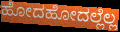
ಹೋದಹೋದಲ್ಲೆಲ್ಲ